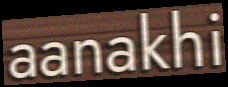
aanakhi